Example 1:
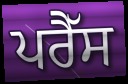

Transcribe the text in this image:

ਪਰੈੱਸ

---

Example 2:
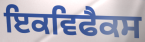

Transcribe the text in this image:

ਇਕਵਿਫੈਕਸ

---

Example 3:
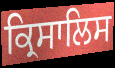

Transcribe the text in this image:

ਕ੍ਰਿਸਾਲਿਸ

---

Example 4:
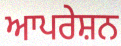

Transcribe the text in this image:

ਆਪਰੇਸ਼ਨ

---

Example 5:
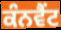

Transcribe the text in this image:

ਕੰਨਵੈਂਟ